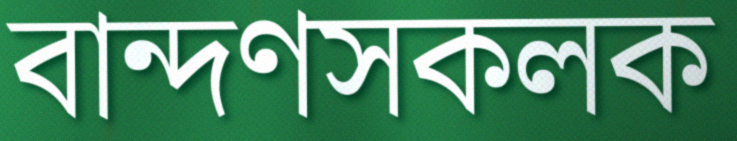
বান্দণসকলক